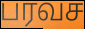
பரவச